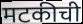
मटकीची